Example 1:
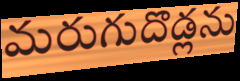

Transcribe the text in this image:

మరుగుదొడ్లను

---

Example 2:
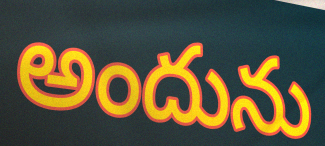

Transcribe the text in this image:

అందును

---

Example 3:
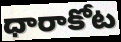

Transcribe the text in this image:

ధారాకోట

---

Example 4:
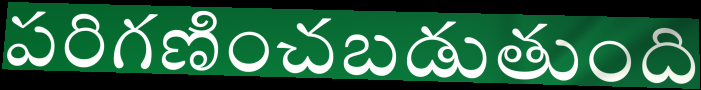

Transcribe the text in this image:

పరిగణించబడుతుంది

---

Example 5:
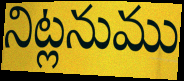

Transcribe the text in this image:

నిట్లనుము